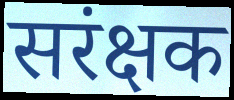
सरंक्षक